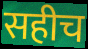
सहीच